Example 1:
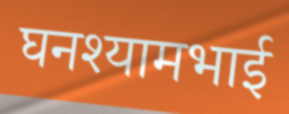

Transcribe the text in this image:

घनश्यामभाई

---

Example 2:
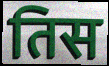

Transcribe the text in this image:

तिस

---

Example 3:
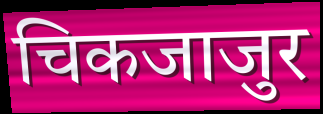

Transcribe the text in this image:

चिकजाजुर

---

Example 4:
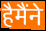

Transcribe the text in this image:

हैमैंने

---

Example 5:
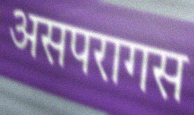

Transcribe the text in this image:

असपरागस